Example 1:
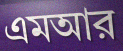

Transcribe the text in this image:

এমআর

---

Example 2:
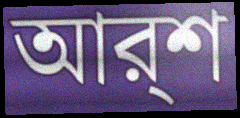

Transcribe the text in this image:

আর্‌শ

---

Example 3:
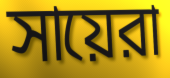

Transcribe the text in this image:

সায়েরা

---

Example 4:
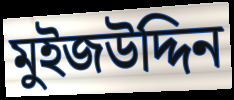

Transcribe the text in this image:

মুইজউদ্দিন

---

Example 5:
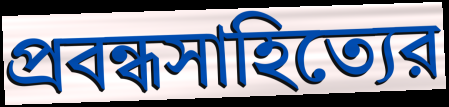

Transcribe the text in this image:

প্রবন্ধসাহিত্যের